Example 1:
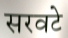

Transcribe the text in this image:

सरवटे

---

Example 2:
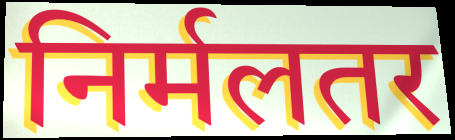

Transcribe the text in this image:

निर्मलतर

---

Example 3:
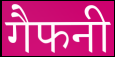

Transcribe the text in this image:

गैफनी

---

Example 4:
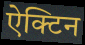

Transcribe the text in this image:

ऐक्टिन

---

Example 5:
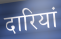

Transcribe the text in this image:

दारियां